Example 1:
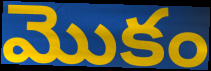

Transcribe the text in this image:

మొకం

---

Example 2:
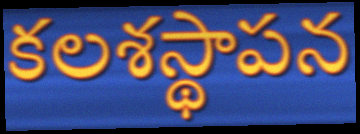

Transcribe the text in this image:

కలశస్థాపన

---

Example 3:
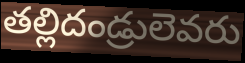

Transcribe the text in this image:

తల్లిదండ్రులెవరు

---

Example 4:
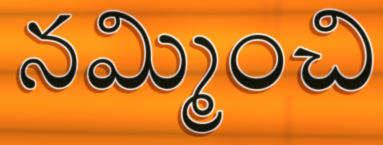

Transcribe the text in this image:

నమ్మించి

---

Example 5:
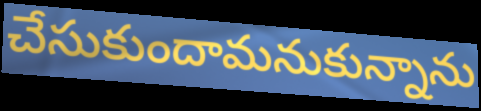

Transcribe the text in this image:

చేసుకుందామనుకున్నాను